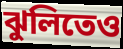
ঝুলিতেও